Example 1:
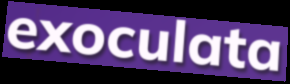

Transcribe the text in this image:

exoculata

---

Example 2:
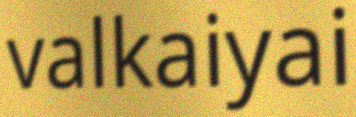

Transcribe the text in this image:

valkaiyai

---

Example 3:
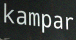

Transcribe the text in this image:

kampar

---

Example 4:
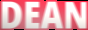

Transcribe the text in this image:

DEAN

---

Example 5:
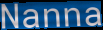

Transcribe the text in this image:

Nanna